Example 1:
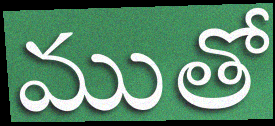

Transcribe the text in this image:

ముతో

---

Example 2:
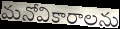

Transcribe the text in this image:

మనోవికారాలను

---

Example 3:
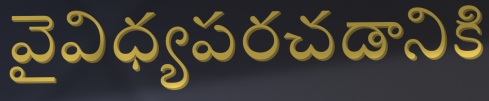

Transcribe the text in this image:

వైవిధ్యపరచడానికి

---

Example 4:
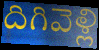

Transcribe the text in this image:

దిగివెళ్లి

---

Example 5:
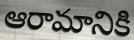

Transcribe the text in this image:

ఆరామానికి